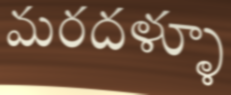
మరదళ్ళూ